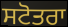
ਸਟੋਤਰਾ